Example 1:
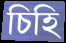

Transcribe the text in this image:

চিহি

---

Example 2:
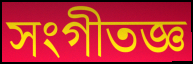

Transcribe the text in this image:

সংগীতজ্ঞ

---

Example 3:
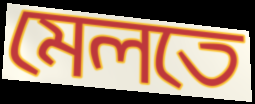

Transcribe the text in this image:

মেলতে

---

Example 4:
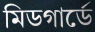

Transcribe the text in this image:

মিডগার্ডে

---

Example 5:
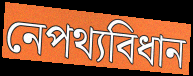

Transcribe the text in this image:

নেপথ্যবিধান